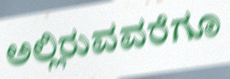
ಅಲ್ಲಿರುವವರೆಗೂ